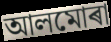
আলমোৰা